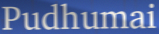
Pudhumai